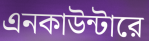
এনকাউন্টারে